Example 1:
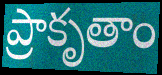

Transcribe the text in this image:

ప్రాకృతాం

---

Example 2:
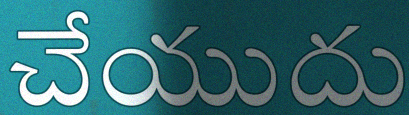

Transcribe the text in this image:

చేయుదు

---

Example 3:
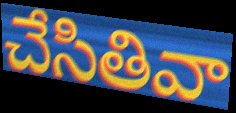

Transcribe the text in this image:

చేసితివా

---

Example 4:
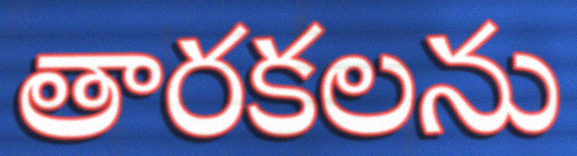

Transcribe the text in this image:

తారకలను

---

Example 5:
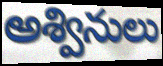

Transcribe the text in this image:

అశ్వినులు